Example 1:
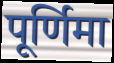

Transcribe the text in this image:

पूर्णिमा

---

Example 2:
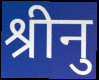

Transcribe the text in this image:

श्रीनु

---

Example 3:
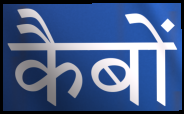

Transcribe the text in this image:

कैबों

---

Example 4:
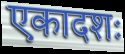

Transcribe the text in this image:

एकादशः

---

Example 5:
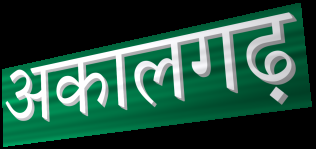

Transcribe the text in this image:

अकालगढ़